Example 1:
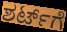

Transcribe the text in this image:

ಶರ್ಟ್‌ಗೆ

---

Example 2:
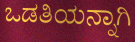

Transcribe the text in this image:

ಒಡತಿಯನ್ನಾಗಿ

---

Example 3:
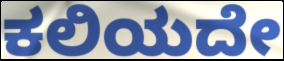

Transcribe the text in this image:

ಕಲಿಯದೇ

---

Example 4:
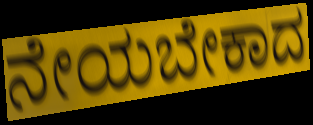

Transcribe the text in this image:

ನೇಯಬೇಕಾದ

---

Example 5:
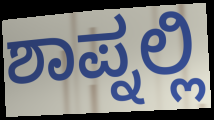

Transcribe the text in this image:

ಶಾಪ್ನಲ್ಲಿ